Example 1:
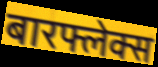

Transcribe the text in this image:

बारफ्लेक्स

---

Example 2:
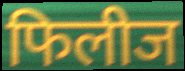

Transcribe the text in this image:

फिलीज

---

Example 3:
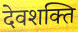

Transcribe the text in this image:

देवशक्ति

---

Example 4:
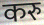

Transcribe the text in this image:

करु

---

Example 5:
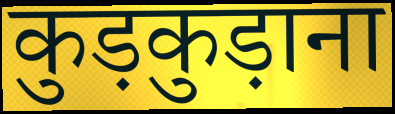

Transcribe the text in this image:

कुड़कुड़ाना